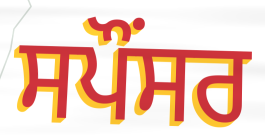
ਸਪੌਂਸਰ